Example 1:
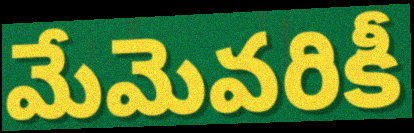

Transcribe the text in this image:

మేమెవరికీ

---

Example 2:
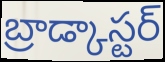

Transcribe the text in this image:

బ్రాడ్కాస్టర్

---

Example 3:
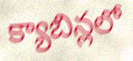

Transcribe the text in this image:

క్యాబిన్లలో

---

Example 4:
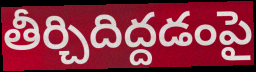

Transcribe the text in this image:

తీర్చిదిద్దడంపై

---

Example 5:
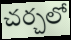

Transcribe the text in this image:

చర్చలో